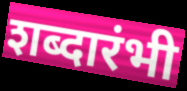
शब्दारंभी